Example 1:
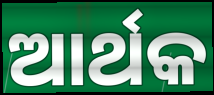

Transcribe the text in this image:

ଆର୍ଥକ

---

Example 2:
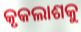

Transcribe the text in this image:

କୃକଲାଶକୁ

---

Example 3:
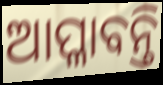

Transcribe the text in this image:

ଆପ୍ଳାବନ୍ତି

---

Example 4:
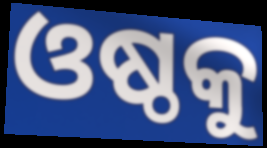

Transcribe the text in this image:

ଓଷ୍ଠକୁ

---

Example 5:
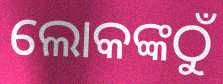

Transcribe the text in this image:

ଲୋକଙ୍କଠୁଁ